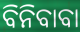
ବିନିବାବା